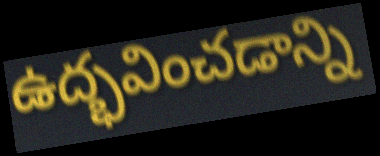
ఉద్భవించడాన్ని